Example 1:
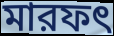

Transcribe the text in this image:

মারফৎ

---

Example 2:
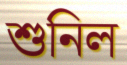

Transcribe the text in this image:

শুনিল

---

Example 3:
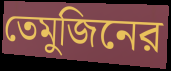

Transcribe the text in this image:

তেমুজিনের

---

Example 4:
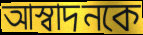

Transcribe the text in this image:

আস্বাদনকে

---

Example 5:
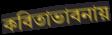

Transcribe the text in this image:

কবিতাভাবনায়